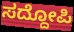
ಸದ್ದೋಪಿ